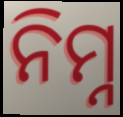
ନିମ୍ନ